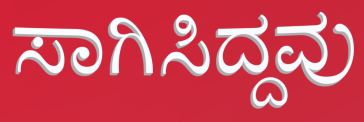
ಸಾಗಿಸಿದ್ದವು